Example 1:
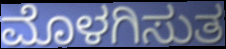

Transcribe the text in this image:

ಮೊಳಗಿಸುತ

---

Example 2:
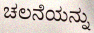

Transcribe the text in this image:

ಚಲನೆಯನ್ನು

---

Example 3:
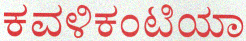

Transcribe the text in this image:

ಕವಳಿಕಂಟಿಯಾ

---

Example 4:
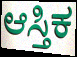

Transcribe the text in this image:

ಆಸ್ತಿಕ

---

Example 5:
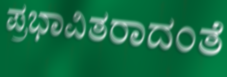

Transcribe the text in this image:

ಪ್ರಭಾವಿತರಾದಂತೆ